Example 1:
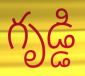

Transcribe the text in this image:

గృడ్డి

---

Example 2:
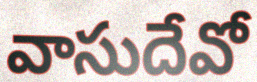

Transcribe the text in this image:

వాసుదేవో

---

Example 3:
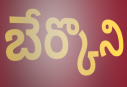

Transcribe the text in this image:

బేర్కొని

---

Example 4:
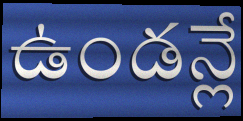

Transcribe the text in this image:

ఉండన్లే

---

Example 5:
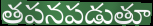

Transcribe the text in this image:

తపనపడుతూ